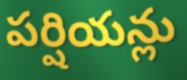
పర్షియన్లు